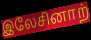
இலேசினாற்